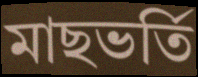
মাছভর্তি